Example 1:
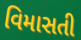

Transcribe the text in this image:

વિમાસતી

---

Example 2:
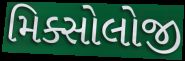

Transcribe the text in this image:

મિક્સોલોજી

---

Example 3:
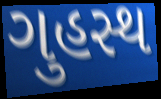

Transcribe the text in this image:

ગુહસ્થ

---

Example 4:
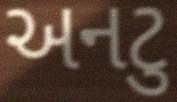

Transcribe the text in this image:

અનટુ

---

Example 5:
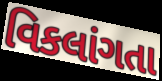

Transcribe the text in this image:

વિકલાંગતા